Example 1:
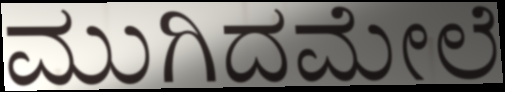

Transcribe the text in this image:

ಮುಗಿದಮೇಲೆ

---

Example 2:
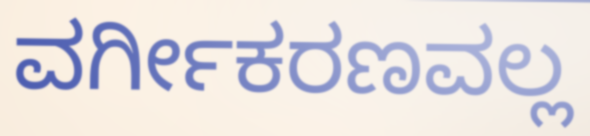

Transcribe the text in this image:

ವರ್ಗೀಕರಣವಲ್ಲ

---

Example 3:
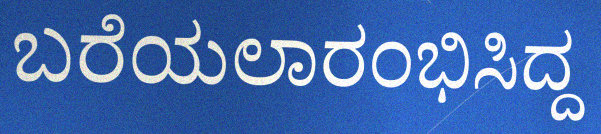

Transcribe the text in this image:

ಬರೆಯಲಾರಂಭಿಸಿದ್ದ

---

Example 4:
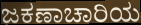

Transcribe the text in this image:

ಜಕಣಾಚಾರಿಯ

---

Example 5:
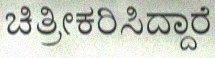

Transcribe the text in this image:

ಚಿತ್ರೀಕರಿಸಿದ್ದಾರೆ